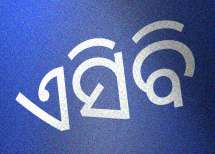
ଏସିବି